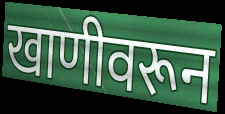
खाणीवरून